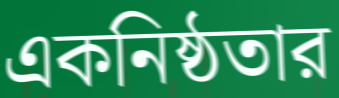
একনিষ্ঠতার